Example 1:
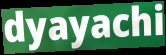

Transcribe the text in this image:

dyayachi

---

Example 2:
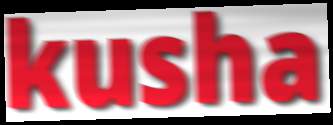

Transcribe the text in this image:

kusha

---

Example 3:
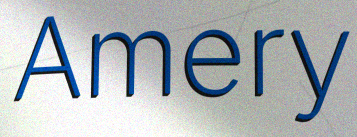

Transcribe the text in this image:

Amery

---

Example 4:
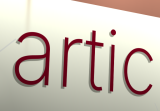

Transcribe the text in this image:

artic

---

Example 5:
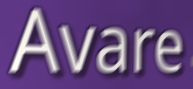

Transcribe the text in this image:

Avare